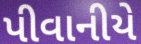
પીવાનીયે